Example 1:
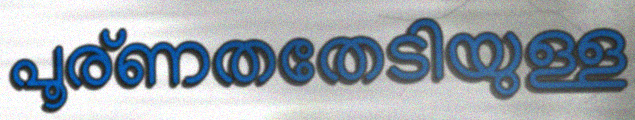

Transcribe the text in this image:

പൂര്ണതതേടിയുള്ള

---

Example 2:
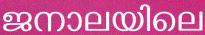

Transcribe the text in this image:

ജനാലയിലെ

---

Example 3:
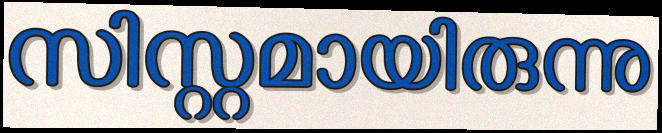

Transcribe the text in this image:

സിസ്റ്റമായിരുന്നു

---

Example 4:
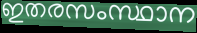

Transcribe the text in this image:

ഇതരസംസ്ഥാന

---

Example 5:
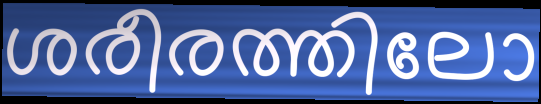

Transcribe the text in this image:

ശരീരത്തിലോ